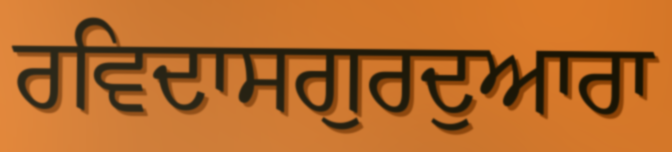
ਰਵਿਦਾਸਗੁਰਦੁਆਰਾ